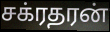
சக்ரதரன்